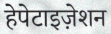
हेपेटाइज़ेशन